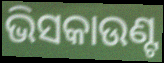
ଭିସକାଉଣ୍ଟ